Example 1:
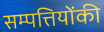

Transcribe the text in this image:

सम्पत्तियोंकी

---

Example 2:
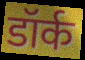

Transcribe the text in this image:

डॉर्क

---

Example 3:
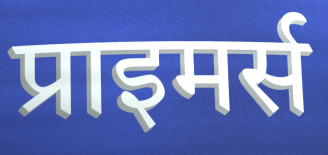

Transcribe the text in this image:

प्राइमर्स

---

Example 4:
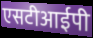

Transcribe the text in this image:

एसटीआईपी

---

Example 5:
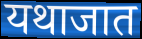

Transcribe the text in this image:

यथाजात